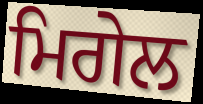
ਮਿਗੇਲ